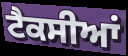
ਟੈਕਸੀਆਂ